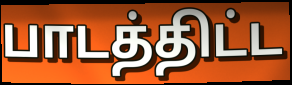
பாடத்திட்ட